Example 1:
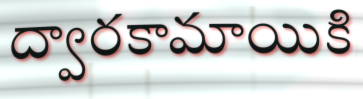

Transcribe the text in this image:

ద్వారకామాయికి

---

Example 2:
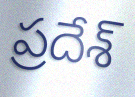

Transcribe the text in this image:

ప్రదేశ్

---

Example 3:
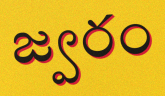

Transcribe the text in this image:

జ్వరం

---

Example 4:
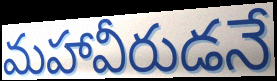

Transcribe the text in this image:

మహావీరుడనే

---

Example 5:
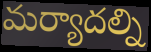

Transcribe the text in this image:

మర్యాదల్ని